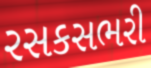
રસકસભરી